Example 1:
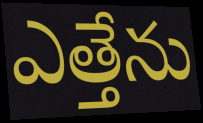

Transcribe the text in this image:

ఎత్తేను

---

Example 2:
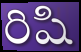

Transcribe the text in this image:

రిషి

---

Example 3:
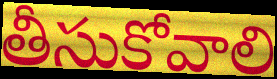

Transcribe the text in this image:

తీసుకోవాలి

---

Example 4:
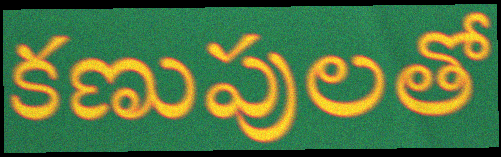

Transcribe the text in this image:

కణుపులతో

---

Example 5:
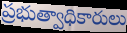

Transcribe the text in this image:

ప్రభుత్వాధికారులు